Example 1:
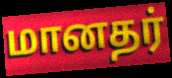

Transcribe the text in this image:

மானதர்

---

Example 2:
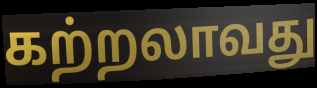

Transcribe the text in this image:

கற்றலாவது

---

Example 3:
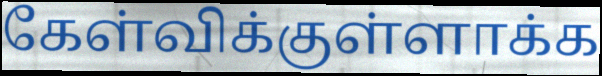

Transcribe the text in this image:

கேள்விக்குள்ளாக்க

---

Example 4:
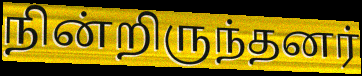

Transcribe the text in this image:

நின்றிருந்தனர்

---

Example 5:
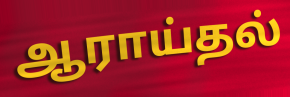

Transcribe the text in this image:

ஆராய்தல்